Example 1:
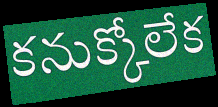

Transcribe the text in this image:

కనుక్కోలేక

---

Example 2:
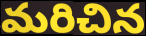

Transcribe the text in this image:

మరిచిన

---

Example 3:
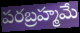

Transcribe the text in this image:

పరబ్రహ్మమే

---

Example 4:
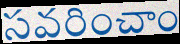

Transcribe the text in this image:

సవరించాం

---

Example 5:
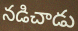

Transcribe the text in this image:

నడిచాడు